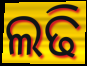
ଲଢି